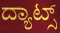
ದ್ಯಾಟ್ಸ್